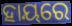
ହାୟରେ